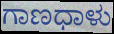
ಗಾಣಧಾಳು